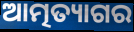
ଆତ୍ମତ୍ୟାଗର